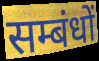
सम्बंधों